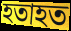
হতাহত